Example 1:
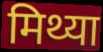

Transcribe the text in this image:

मिथ्या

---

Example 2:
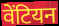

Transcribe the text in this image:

वेंटियन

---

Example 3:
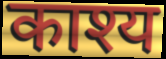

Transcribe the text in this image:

काश्य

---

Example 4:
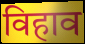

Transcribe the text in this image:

विहाव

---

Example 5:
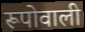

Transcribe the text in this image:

रूपोवाली